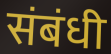
संबंधी